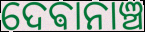
ଦେଵାନାଞ୍ଚ